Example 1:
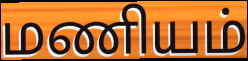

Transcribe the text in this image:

மணியம்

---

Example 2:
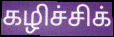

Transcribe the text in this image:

கழிச்சிக்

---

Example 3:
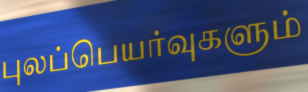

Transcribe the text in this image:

புலப்பெயர்வுகளும்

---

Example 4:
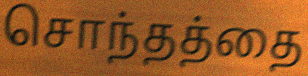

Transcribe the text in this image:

சொந்தத்தை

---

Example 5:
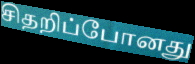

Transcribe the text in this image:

சிதறிப்போனது